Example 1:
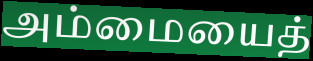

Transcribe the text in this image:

அம்மையைத்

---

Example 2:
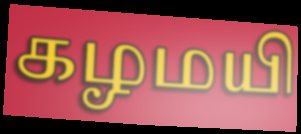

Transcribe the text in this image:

கழமயி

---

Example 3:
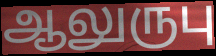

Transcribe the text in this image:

ஆலுருபு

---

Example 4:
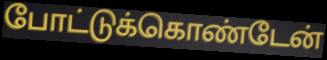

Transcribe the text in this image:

போட்டுக்கொண்டேன்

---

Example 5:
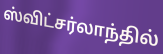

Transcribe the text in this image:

ஸ்விட்சர்லாந்தில்